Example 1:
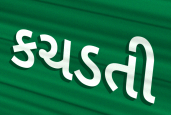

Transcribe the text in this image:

કચડતી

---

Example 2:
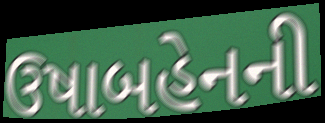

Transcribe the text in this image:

ઉષાબહેનની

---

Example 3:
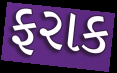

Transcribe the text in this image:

ફરાક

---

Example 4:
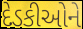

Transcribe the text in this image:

દેડકીઓને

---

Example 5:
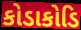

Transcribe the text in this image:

કોડાકોડિ